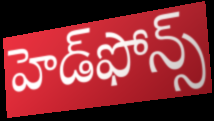
హెడ్‌ఫోన్స్